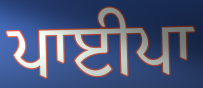
ਪਾਈਪਾ